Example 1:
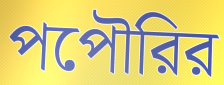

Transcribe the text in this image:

পপৌরির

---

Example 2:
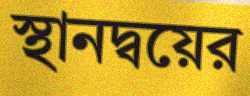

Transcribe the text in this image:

স্থানদ্বয়ের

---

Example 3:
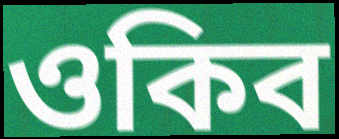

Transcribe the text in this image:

ওকিব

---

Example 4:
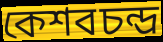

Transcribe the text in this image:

কেশবচন্দ্র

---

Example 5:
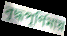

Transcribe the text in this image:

বুদ্ধপূর্ণিমায়